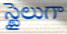
స్టైలుగా